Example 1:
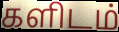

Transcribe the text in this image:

களிடம்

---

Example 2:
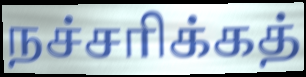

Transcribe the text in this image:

நச்சரிக்கத்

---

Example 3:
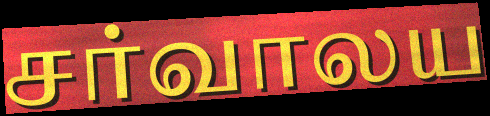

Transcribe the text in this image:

சர்வாலய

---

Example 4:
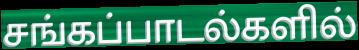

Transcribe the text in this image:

சங்கப்பாடல்களில்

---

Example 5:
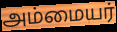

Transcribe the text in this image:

அம்மையர்